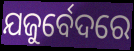
ଯଜୁର୍ବେଦରେ